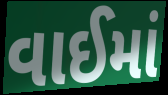
વાઈમાં